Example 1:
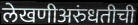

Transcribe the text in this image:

लेखणीअरुंधतीची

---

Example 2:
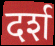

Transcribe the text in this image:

दर्श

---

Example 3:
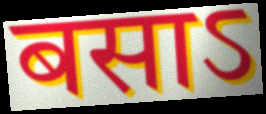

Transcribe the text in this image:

बसाऽ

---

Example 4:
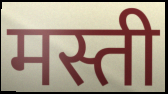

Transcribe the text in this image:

मस्ती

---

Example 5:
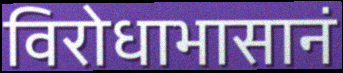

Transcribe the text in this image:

विरोधाभासानं